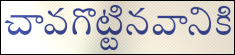
చావగొట్టినవానికి